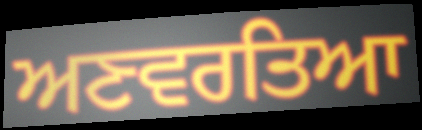
ਅਣਵਰਤਿਆ